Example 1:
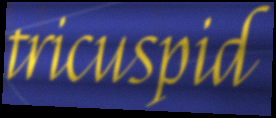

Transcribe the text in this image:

tricuspid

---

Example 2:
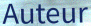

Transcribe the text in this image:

Auteur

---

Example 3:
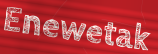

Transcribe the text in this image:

Enewetak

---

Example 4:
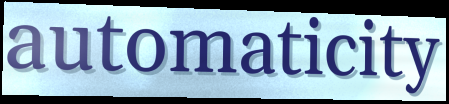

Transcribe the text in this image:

automaticity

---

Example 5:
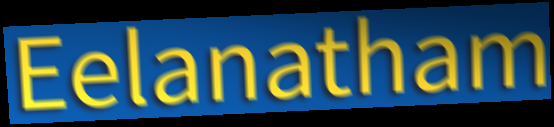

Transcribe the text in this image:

Eelanatham